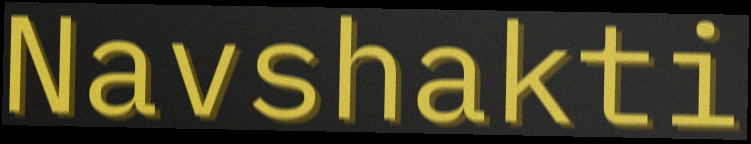
Navshakti